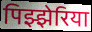
पिझ्झेरिया